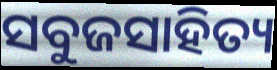
ସବୁଜସାହିତ୍ୟ